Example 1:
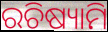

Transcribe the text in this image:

ରଚିଷ୍ୟାମି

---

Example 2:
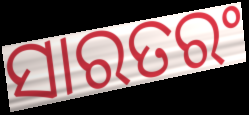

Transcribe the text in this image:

ସାରତରଂ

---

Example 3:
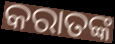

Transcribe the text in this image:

କରାତଙ୍କ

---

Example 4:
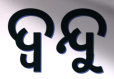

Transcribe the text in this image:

ଦ୍ଵନ୍ଦୁ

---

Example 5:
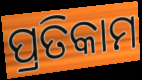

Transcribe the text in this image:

ପ୍ରତିକାମ